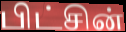
பிட்சின்